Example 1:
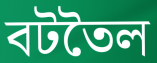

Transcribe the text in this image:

বটতৈল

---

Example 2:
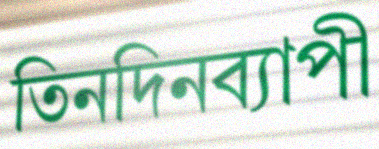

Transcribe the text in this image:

তিনদিনব্যাপী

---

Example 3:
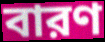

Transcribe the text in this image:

বারণ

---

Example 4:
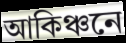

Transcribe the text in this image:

আকিঞ্চনে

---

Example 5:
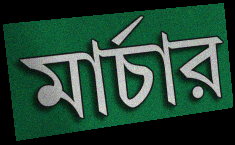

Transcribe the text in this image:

মার্চার